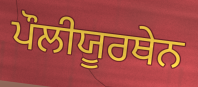
ਪੌਲੀਯੂਰਥੇਨ